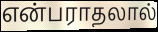
என்பராதலால்